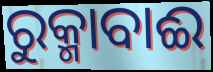
ରୁକ୍ମାବାଈ